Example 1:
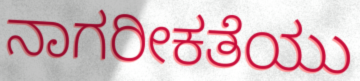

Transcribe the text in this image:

ನಾಗರೀಕತೆಯು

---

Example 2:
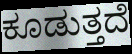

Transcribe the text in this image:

ಕೂಡುತ್ತದೆ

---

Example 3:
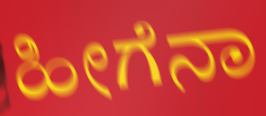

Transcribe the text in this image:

ಹೀಗೆನಾ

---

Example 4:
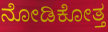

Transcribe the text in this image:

ನೋಡಿಕೋತ್ತ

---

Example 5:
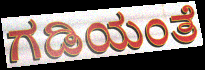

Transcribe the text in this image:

ಗಡಿಯಂತೆ